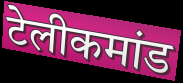
टेलीकमांड